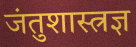
जंतुशास्त्रज्ञ